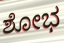
ಶೋಭ